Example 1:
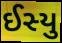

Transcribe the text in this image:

ઈસ્યુ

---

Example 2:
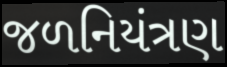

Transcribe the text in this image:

જળનિયંત્રણ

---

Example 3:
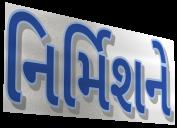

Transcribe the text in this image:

નિર્મિશને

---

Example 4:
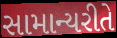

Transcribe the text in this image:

સામાન્યરીતે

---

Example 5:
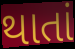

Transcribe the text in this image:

થાતાં